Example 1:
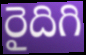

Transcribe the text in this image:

రైదిగి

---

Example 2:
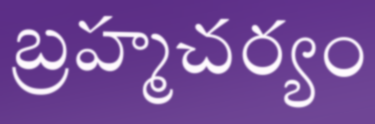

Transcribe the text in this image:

బ్రహ్మచర్యం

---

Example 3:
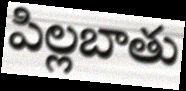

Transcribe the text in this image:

పిల్లబాతు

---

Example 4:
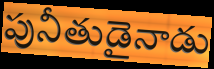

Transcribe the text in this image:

పునీతుడైనాడు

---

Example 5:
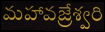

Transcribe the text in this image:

మహావజ్రేశ్వరి